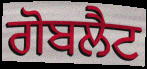
ਗੋਬਲੈਟ